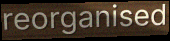
reorganised